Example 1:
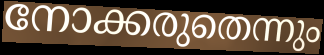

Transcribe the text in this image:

നോക്കരുതെന്നും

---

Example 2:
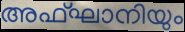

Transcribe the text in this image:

അഫ്ഘാനിയും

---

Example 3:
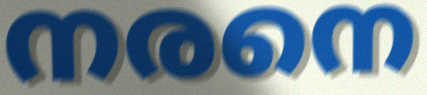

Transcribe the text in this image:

നരനെ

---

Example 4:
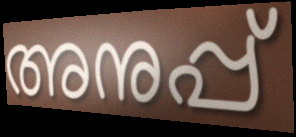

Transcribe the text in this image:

അനുപ്പ്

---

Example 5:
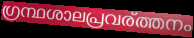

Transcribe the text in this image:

ഗ്രന്ഥശാലപ്രവര്ത്തനം